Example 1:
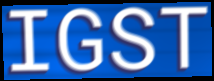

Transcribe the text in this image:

IGST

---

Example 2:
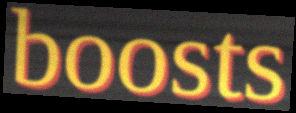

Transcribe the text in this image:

boosts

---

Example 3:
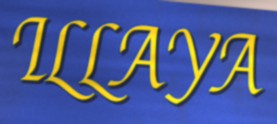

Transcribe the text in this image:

ILLAYA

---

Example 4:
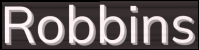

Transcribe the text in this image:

Robbins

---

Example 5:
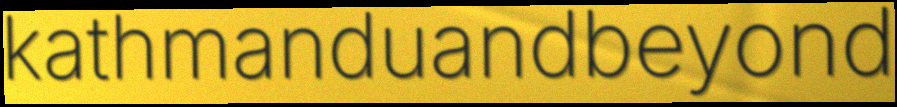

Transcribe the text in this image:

kathmanduandbeyond